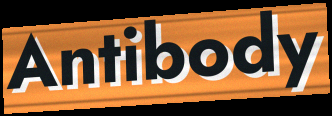
Antibody